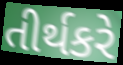
તીર્થકરે